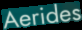
Aerides